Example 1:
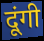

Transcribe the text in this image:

दूंगी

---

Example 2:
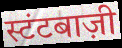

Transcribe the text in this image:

स्टंटबाज़ी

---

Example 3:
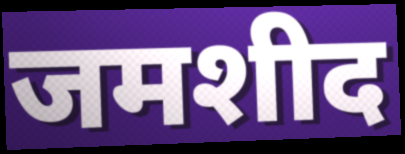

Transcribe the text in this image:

जमशीद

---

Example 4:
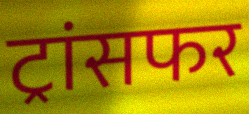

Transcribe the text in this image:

ट्रांसफर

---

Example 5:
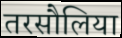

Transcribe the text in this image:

तरसौलिया